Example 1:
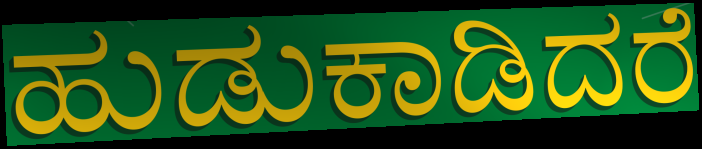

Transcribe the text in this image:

ಹುಡುಕಾಡಿದರೆ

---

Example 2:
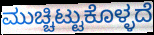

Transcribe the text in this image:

ಮುಚ್ಚಿಟ್ಟುಕೊಳ್ಳದೆ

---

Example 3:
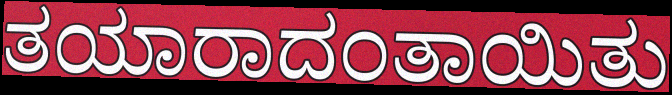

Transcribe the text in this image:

ತಯಾರಾದಂತಾಯಿತು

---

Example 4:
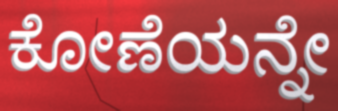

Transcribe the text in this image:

ಕೋಣೆಯನ್ನೇ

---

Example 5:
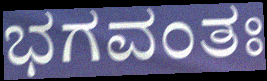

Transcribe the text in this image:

ಭಗವಂತಃ